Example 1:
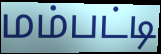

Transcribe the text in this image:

மம்பட்டி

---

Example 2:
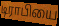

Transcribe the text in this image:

டிராபியை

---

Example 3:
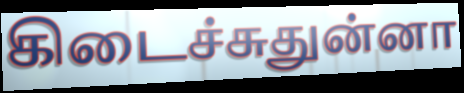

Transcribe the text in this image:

கிடைச்சுதுன்னா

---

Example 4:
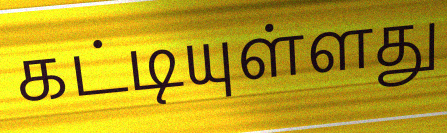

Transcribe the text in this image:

கட்டியுள்ளது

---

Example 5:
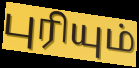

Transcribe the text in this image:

புரியும்